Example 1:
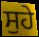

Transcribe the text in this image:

ਸੁਹੇ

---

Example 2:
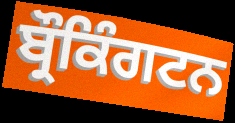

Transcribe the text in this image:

ਬ੍ਰੌਕਿੰਗਟਨ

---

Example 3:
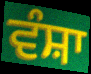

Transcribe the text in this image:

ਵੰਸ਼ਾ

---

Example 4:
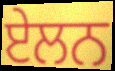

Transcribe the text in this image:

ਏਲਨ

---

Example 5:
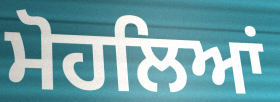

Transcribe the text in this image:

ਮੋਹਲਿਆਂ